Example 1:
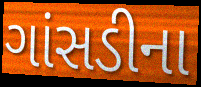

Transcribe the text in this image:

ગાંસડીના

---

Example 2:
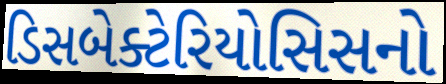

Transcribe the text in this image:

ડિસબેક્ટેરિયોસિસનો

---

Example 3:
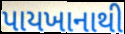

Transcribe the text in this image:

પાયખાનાથી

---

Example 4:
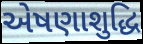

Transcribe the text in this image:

એષણાશુદ્ધિ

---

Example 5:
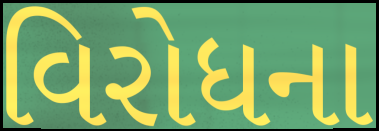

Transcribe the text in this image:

વિરોધના